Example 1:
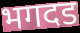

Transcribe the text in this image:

भगदड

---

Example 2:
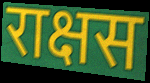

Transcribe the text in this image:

राक्षस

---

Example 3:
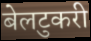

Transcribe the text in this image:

बेलटुकरी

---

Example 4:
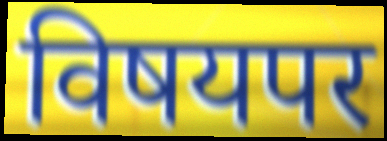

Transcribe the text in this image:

विषयपर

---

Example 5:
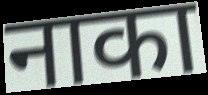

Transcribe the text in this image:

नाका